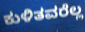
ಕುಳಿತವರೆಲ್ಲ